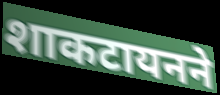
शाकटायनने